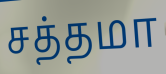
சத்தமா